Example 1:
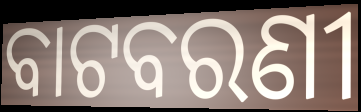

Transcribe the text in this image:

ବାଟବରଣୀ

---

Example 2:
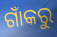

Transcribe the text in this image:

ଗାଁକରୁ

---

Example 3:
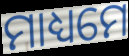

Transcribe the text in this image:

ମାଧ୍ୟମେ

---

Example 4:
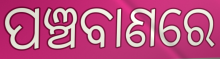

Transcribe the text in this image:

ପଞ୍ଚବାଣରେ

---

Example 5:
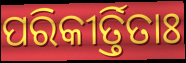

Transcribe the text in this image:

ପରିକୀର୍ତ୍ତିତାଃ